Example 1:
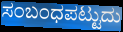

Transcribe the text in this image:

ಸಂಬಂಧಪಟ್ಟುದು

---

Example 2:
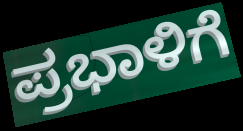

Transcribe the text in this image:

ಪ್ರಭಾಳಿಗೆ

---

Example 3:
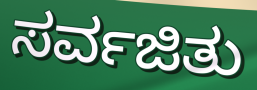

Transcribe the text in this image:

ಸರ್ವಜಿತು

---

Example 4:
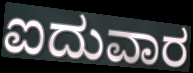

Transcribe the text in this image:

ಐದುವಾರ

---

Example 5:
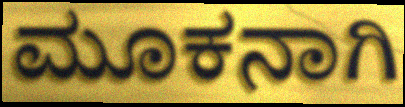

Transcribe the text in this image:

ಮೂಕನಾಗಿ